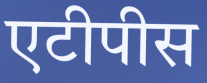
एटीपीस